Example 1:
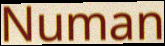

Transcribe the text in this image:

Numan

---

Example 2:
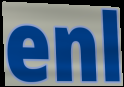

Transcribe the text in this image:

enl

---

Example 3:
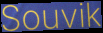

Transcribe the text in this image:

Souvik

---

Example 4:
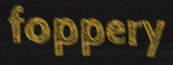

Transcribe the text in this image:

foppery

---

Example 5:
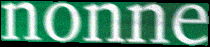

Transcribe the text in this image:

nonne